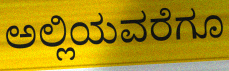
ಅಲ್ಲಿಯವರೆಗೂ